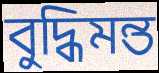
বুদ্ধিমন্ত